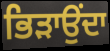
ਭਿੜਾਉਂਦਾ